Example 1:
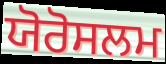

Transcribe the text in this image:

ਯੋਰੋਸਲਮ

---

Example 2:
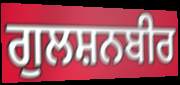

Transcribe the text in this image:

ਗੁਲਸ਼ਨਬੀਰ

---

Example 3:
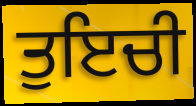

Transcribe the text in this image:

ਤੁਇਚੀ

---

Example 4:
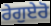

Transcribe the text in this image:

ਰੇਗੁਏਰੋ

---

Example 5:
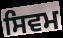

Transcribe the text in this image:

ਸਿਵਮ